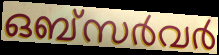
ഒബ്സർവർ